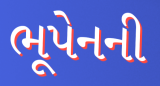
ભૂપેનની